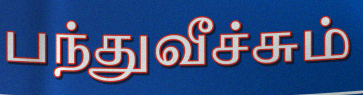
பந்துவீச்சும்